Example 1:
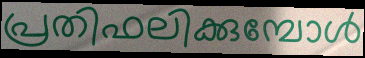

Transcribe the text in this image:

പ്രതിഫലിക്കുമ്പോൾ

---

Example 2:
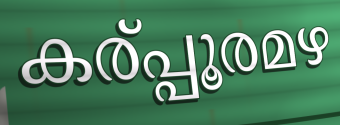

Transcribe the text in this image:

കര്പ്പൂരമഴ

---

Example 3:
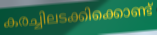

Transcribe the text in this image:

കരച്ചിലടക്കിക്കൊണ്ട്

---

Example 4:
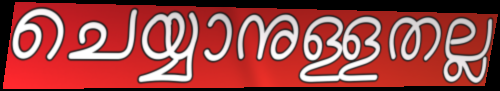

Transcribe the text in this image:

ചെയ്യാനുള്ളതല്ല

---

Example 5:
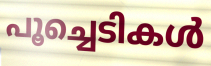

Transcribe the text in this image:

പൂച്ചെടികൾ